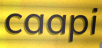
caapi